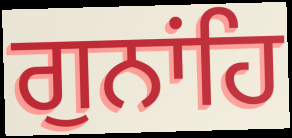
ਗੁਨਾਂਹਿ